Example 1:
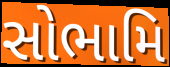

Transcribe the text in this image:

સોભામિ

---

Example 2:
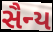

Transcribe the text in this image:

સૈન્ય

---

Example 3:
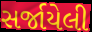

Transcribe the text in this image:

સર્જાયેલી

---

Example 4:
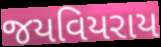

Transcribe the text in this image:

જયવિયરાય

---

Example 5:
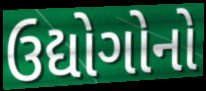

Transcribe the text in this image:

ઉદ્યોગોનો